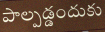
పాల్పడ్డందుకు